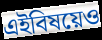
এইবিষয়েও